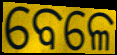
ବେଳେ